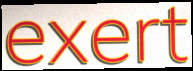
exert